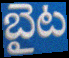
బైట